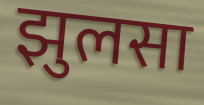
झुलसा